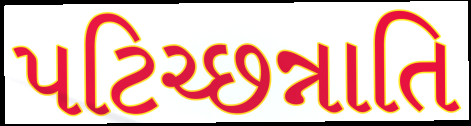
પટિચ્છન્નાતિ